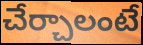
చేర్చాలంటే